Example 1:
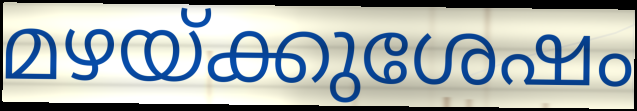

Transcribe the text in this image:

മഴയ്ക്കുശേഷം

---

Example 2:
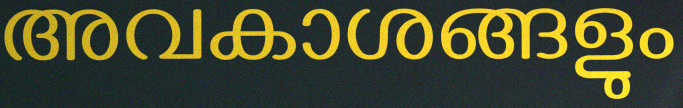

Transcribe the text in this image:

അവകാശങ്ങളും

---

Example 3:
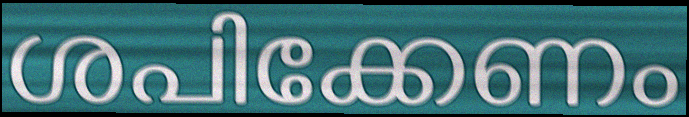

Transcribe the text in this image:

ശപിക്കേണം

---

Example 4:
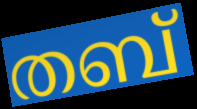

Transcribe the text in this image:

തബ്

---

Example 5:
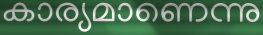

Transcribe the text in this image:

കാര്യമാണെന്നു